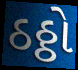
ઠઠ્ઠો